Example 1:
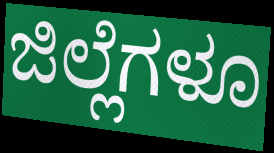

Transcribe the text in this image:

ಜಿಲ್ಲೆಗಳೂ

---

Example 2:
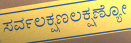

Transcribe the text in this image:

ಸರ್ವಲಕ್ಷಣಲಕ್ಷಣ್ಯೋ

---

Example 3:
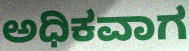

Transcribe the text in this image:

ಅಧಿಕವಾಗ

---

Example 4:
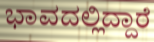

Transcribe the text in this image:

ಭಾವದಲ್ಲಿದ್ದಾರೆ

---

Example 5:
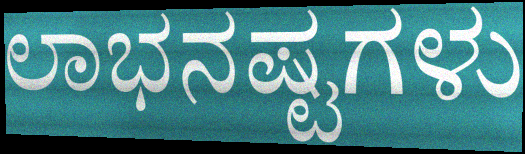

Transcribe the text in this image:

ಲಾಭನಷ್ಟಗಳು